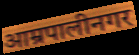
आम्रपालीनगर